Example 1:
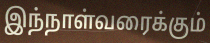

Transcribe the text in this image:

இந்நாள்வரைக்கும்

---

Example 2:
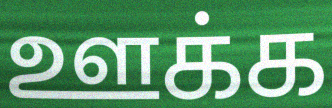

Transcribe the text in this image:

ஊக்க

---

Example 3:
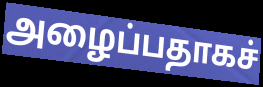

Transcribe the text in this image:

அழைப்பதாகச்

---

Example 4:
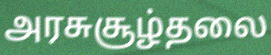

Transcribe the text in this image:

அரசுசூழ்தலை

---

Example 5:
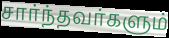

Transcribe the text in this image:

சார்ந்தவர்களும்